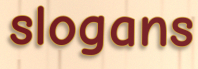
slogans